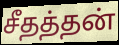
சீதத்தன்